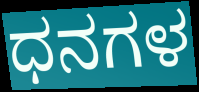
ಧನಗಳ